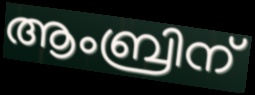
ആംബ്രിന്